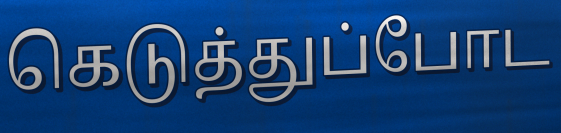
கெடுத்துப்போட